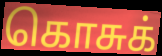
கொசுக்